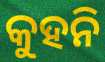
କୁହନି